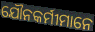
ଯୌନକର୍ମୀମାନେ